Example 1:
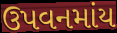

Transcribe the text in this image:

ઉપવનમાંય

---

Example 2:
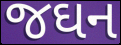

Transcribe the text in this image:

જઘન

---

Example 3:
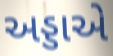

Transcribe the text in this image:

અડ્ડાએ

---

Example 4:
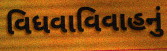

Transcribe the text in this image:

વિધવાવિવાહનું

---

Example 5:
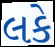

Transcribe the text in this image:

લકે